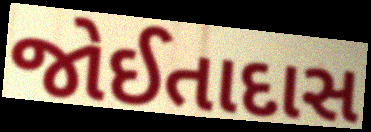
જોઈતાદાસ